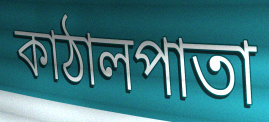
কাঠালপাতা